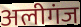
अलीगंज